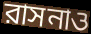
রাসনাও